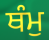
ਥੰਮੁ